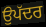
ਉਪੱਦਰ